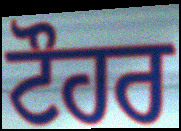
ਟੌਹਰ